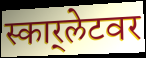
स्कार्लेटवर